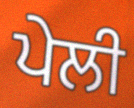
ਪੇਲੀ